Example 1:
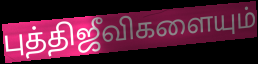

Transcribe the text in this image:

புத்திஜீவிகளையும்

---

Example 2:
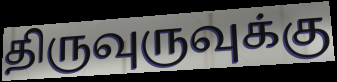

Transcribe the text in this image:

திருவுருவுக்கு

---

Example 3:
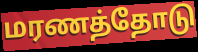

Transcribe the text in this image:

மரணத்தோடு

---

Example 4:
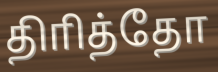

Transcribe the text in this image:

திரித்தோ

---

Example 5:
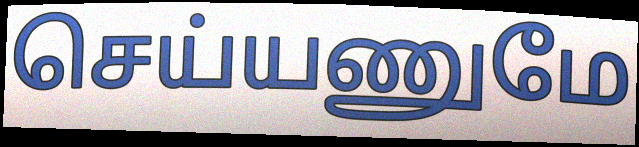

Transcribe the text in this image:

செய்யணுமே